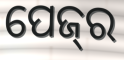
ପେଜ୍‌ର